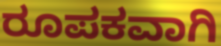
ರೂಪಕವಾಗಿ